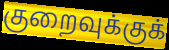
குறைவுக்குக்